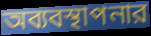
অব্যবস্থাপনার